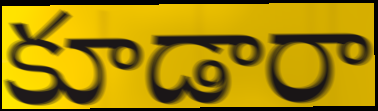
కూడారా